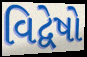
વિદ્વેષો